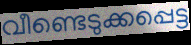
വീണ്ടെടുക്കപ്പെട്ട